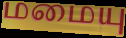
மமையு